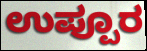
ಉಪ್ಪೂರ